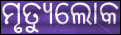
ମୃତ୍ୟୁଲୋକ